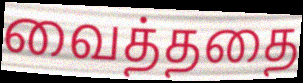
வைத்ததை